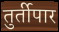
तुर्तीपार